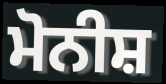
ਮੋਨੀਸ਼